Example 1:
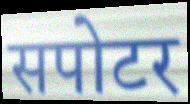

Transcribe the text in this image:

सपोटर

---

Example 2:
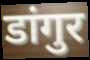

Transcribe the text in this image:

डांगुर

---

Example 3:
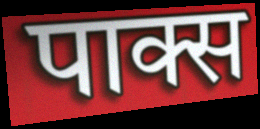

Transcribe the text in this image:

पाक्स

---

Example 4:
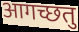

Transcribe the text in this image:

आगच्छतु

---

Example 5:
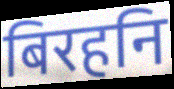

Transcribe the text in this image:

बिरहनि